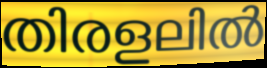
തിരളലിൽ